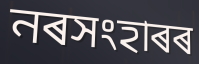
নৰসংহাৰৰ